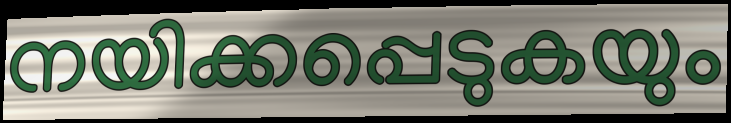
നയിക്കപ്പെടുകയും